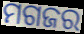
ମଗଜର